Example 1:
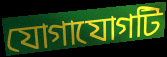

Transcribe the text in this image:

যোগাযোগটি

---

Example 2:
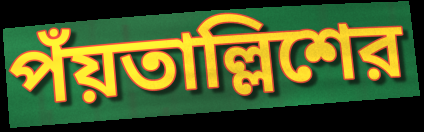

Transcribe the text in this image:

পঁয়তাল্লিশের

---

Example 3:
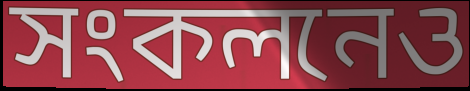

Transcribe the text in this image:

সংকলনেও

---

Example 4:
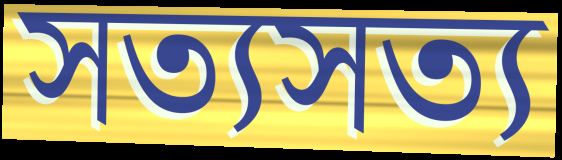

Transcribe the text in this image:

সত্যসত্য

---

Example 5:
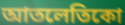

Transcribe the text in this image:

আতলেতিকো